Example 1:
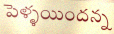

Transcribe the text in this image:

పెళ్ళయిందన్న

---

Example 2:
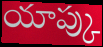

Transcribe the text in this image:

యాప్కు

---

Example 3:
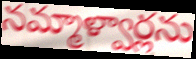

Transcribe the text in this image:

నమ్మాళ్వార్లను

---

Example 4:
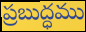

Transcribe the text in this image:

ప్రబుద్ధము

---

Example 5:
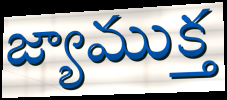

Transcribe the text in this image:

జ్యాముక్త